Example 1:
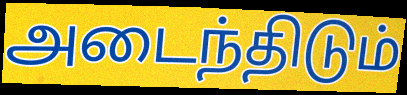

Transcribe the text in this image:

அடைந்திடும்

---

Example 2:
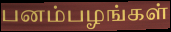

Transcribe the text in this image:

பனம்பழங்கள்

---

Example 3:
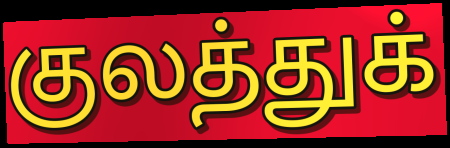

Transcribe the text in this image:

குலத்துக்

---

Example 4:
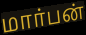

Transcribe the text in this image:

மார்பன்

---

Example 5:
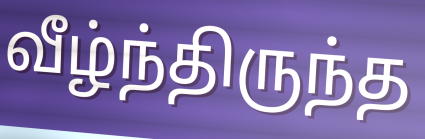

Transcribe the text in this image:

வீழ்ந்திருந்த